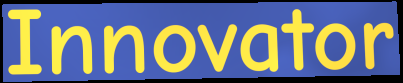
Innovator